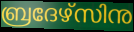
ബ്രദേഴ്സിനു